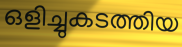
ഒളിച്ചുകടത്തിയ